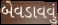
બેવડાવવું